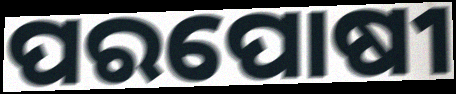
ପରପୋଷୀ